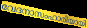
വേദനാസംഹാരിയായി